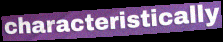
characteristically